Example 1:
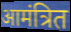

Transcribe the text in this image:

आमंत्रित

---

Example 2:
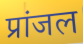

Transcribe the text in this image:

प्रांजल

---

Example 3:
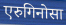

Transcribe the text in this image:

एरुगिनोसा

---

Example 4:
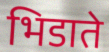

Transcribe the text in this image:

भिडाते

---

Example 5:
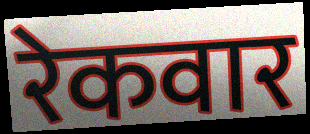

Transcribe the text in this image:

रेकवार